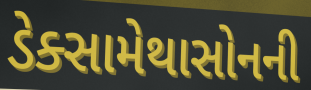
ડેક્સામેથાસોનની